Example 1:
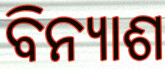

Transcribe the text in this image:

ବିନ୍ୟାଶ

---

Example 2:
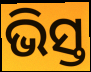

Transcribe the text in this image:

ଭିସ୍ତ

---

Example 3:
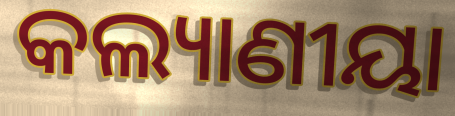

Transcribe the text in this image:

କଲ୍ୟାଣୀୟା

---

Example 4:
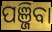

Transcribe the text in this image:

ପଞ୍ଜିବା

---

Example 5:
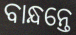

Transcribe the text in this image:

ବାନ୍ଧନ୍ତେ